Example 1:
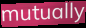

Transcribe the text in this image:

mutually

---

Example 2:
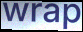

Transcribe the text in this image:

wrap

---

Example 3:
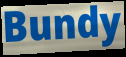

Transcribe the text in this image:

Bundy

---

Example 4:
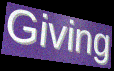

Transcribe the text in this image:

Giving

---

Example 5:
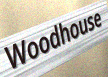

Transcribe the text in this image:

Woodhouse